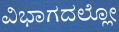
ವಿಭಾಗದಲ್ಲೋ